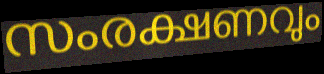
സംരക്ഷണവും